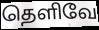
தெளிவே